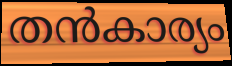
തൻകാര്യം